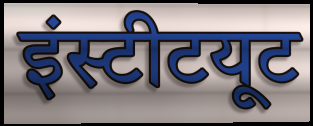
इंस्‍टीटयूट